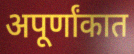
अपूर्णांकात